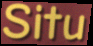
Situ